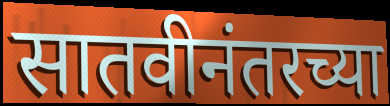
सातवीनंतरच्या